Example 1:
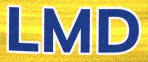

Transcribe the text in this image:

LMD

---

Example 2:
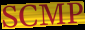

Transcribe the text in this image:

SCMP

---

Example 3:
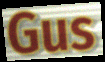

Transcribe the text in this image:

Gus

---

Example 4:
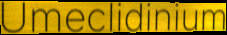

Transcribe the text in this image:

Umeclidinium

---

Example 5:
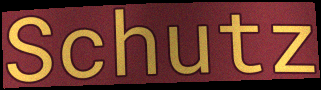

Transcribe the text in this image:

Schutz